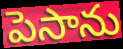
పెసాను